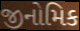
જીનોમિક